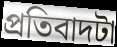
প্রতিবাদটা